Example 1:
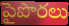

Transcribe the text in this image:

పైపొరలు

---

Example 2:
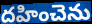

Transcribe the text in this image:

దహించెను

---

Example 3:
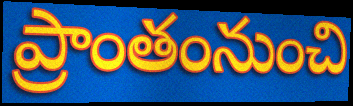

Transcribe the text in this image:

ప్రాంతంనుంచి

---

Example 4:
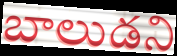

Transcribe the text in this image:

బాలుడని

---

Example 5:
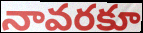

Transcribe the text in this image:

నావరకూ